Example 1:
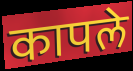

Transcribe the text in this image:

कापले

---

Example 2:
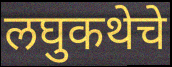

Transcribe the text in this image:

लघुकथेचे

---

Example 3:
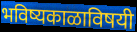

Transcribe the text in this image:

भविष्यकाळाविषयी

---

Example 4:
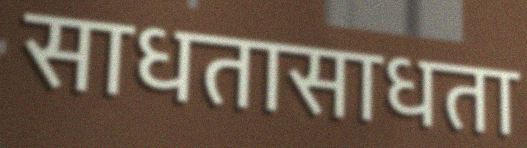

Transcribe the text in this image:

साधतासाधता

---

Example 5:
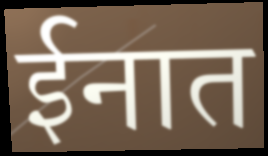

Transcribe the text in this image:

ईनात